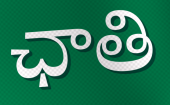
ఛాతి